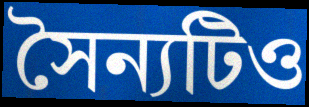
সৈন্যটিও